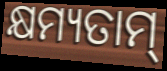
କ୍ଷମ୍ୟତାମ୍